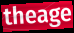
theage